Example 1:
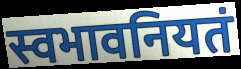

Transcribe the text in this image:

स्वभावनियतं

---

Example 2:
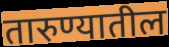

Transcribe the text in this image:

तारुण्यातील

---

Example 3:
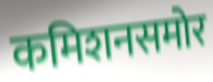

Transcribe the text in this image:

कमिशनसमोर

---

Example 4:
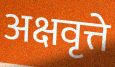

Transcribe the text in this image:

अक्षवृत्ते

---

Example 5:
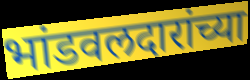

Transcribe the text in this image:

भांडवलदारांच्या